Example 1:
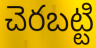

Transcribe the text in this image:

చెరబట్టి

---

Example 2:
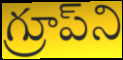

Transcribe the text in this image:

గ్రూప్‌ని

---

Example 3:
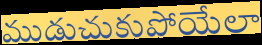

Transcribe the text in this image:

ముడుచుకుపోయేలా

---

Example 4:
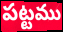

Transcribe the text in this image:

పట్టము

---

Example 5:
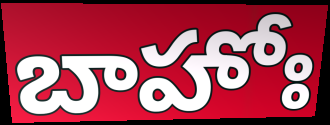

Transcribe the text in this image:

బాహోః